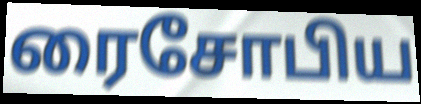
ரைசோபிய